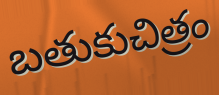
బతుకుచిత్రం